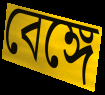
বেঙ্গে